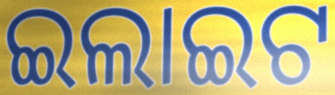
ଇଲାଇଟ